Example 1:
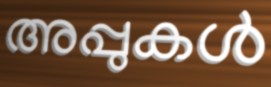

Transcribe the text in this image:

അപ്പുകൾ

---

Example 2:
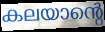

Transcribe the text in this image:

കലയാന്റെ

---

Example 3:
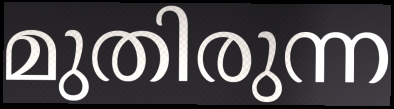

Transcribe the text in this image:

മുതിരുന്ന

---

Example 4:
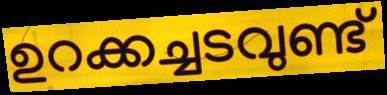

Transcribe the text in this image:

ഉറക്കച്ചടവുണ്ട്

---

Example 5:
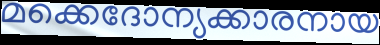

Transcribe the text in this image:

മക്കെദോന്യക്കാരനായ